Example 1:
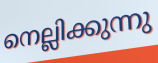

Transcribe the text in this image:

നെല്ലിക്കുന്നു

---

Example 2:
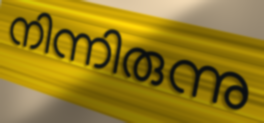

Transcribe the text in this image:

നിന്നിരുന്നു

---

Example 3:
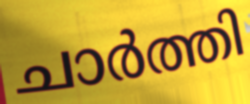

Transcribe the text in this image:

ചാർത്തി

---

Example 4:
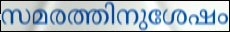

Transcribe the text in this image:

സമരത്തിനുശേഷം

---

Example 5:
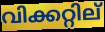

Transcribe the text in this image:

വിക്കറ്റില്